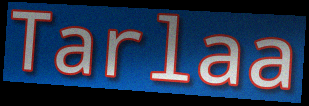
Tarlaa